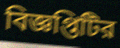
বিজ্ঞপ্তিটির